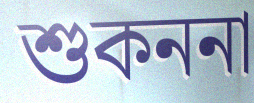
শুকননা